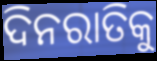
ଦିନରାତିକୁ